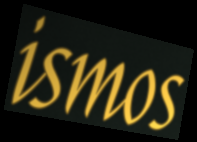
ismos